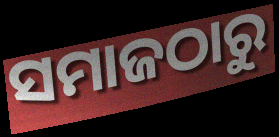
ସମାଜଠାରୁ